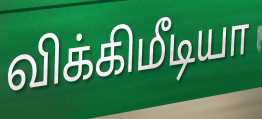
விக்கிமீடியா